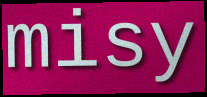
misy